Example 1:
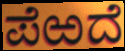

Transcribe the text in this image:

ಪೆಱದೆ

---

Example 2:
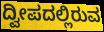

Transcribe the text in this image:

ದ್ವೀಪದಲ್ಲಿರುವ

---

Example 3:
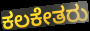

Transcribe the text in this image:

ಕಲಕೇತರು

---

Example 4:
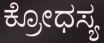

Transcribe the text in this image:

ಕ್ರೋಧಸ್ಯ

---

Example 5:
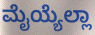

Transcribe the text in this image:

ಮೈಯ್ಯೆಲ್ಲಾ